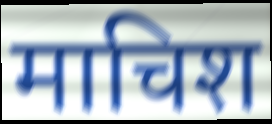
माचिश